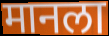
मानला